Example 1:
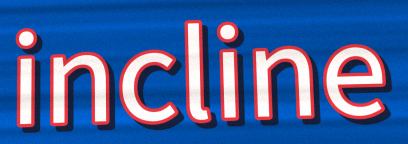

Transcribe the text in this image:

incline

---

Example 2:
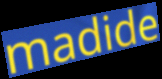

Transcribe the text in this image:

madide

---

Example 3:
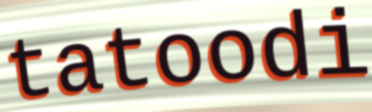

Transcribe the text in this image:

tatoodi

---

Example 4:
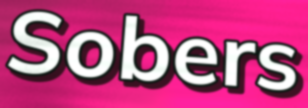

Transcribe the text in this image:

Sobers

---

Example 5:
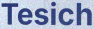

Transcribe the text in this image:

Tesich